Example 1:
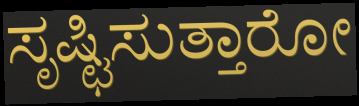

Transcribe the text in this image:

ಸೃಷ್ಟಿಸುತ್ತಾರೋ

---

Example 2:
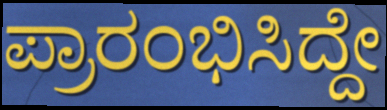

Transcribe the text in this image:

ಪ್ರಾರಂಭಿಸಿದ್ದೇ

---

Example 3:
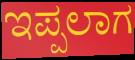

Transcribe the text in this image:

ಇಪ್ಪಲಾಗ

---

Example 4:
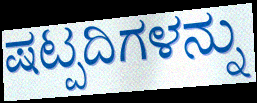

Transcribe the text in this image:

ಷಟ್ಪದಿಗಳನ್ನು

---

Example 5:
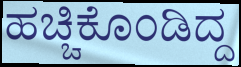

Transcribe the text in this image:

ಹಚ್ಚಿಕೊಂಡಿದ್ದ